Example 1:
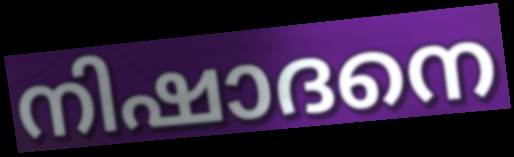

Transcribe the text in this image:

നിഷാദനെ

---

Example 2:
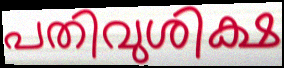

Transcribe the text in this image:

പതിവുശിക്ഷ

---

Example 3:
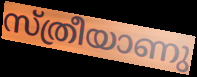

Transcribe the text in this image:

സ്ത്രീയാണു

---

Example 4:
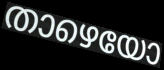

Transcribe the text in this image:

താഴെയോ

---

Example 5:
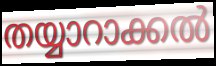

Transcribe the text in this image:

തയ്യാറാക്കൽ